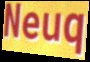
Neuq